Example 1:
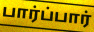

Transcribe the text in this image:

பார்ப்பார்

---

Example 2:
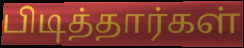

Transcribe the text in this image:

பிடித்தார்கள்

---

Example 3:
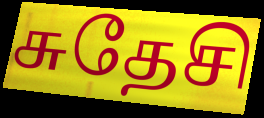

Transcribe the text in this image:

சுதேசி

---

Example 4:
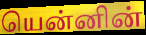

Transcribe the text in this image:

யென்னின்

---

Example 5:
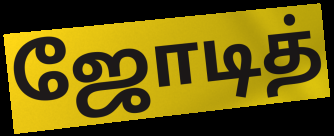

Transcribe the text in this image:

ஜோடித்